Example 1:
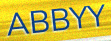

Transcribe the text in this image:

ABBYY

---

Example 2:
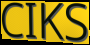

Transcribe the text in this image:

CIKS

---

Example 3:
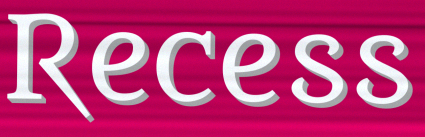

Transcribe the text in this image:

Recess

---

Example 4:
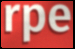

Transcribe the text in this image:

rpe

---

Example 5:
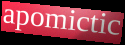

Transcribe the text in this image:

apomictic